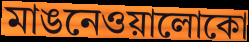
মাঙনেওয়ালোকো